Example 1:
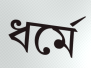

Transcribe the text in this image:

ধর্মে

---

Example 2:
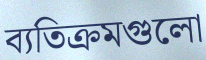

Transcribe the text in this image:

ব্যতিক্রমগুলো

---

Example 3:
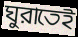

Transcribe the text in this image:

ঘুরাতেই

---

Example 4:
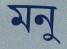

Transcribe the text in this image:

মনু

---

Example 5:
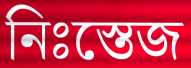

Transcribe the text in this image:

নিঃস্তেজ